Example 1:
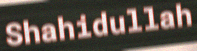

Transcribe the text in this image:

Shahidullah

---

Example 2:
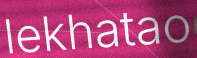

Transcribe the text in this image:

lekhatao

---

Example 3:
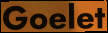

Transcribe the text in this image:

Goelet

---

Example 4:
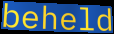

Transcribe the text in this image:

beheld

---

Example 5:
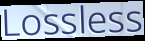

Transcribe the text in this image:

Lossless